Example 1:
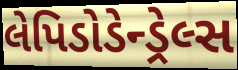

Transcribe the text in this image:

લેપિડોડેન્ડ્રેલ્સ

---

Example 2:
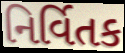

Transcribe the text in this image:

નિર્વિતક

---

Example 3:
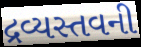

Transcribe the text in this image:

દ્રવ્યસ્તવની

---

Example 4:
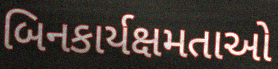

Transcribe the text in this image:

બિનકાર્યક્ષમતાઓ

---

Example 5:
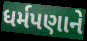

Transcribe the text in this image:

ધર્મપણાને